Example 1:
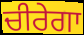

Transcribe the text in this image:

ਚੀਰੇਗਾ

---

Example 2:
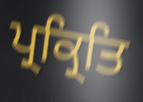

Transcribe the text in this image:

ਪ੍ਰਕ੍ਰਿਤਿ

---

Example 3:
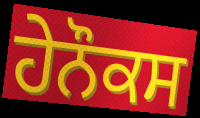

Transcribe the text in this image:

ਹੇਨੌਕਸ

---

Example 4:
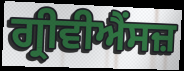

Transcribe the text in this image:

ਗ੍ਰੀਵੀਐਂਸਜ਼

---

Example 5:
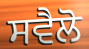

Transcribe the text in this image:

ਸਵੈਲੋ